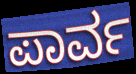
ಪಾರ್ವ